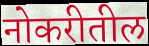
नोकरीतील